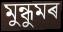
মুন্ধুমৰ